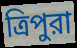
ত্রিপুরা